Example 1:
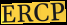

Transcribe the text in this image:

ERCP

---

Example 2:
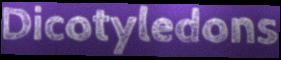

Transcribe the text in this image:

Dicotyledons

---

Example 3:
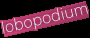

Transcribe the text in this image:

lobopodium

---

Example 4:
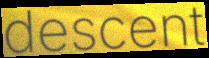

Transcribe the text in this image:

descent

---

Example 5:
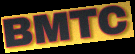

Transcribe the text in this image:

BMTC